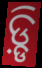
ଡ଼୍ଡି